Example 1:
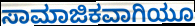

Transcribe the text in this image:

ಸಾಮಾಜಿಕವಾಗಿಯೂ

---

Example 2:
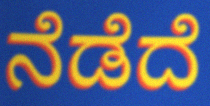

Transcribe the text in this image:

ನೆಡೆದೆ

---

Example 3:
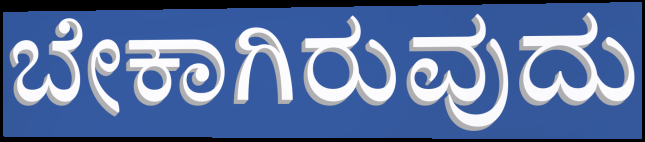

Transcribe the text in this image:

ಬೇಕಾಗಿರುವುದು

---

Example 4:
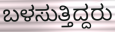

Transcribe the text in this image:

ಬಳಸುತ್ತಿದ್ದರು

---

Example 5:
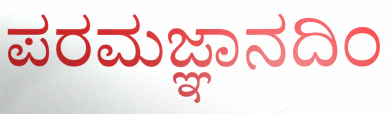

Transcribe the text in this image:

ಪರಮಜ್ಞಾನದಿಂ